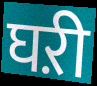
घऱी